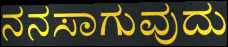
ನನಸಾಗುವುದು